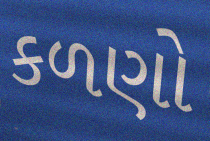
કળણો